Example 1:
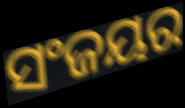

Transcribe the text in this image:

ସଂଜୟର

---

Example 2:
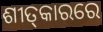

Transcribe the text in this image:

ଶୀତ୍‌କାରରେ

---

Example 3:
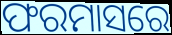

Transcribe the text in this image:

ଫରମାସରେ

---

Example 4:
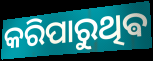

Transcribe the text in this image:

କରିପାରୁଥିଵ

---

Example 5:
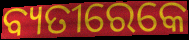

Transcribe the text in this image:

ବ୍ୟତୀରେକେ